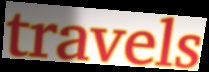
travels